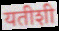
यतीशी